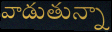
వాడుతున్నా